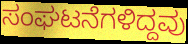
ಸಂಘಟನೆಗಳಿದ್ದವು